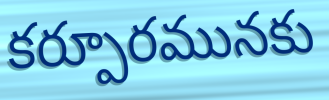
కర్పూరమునకు